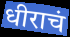
धीराचं